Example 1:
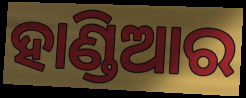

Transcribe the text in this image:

ହାଣ୍ଡିଆର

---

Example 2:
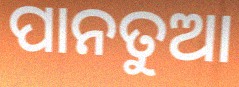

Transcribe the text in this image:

ପାନତୁଆ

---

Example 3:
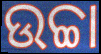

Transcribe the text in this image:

ଉଚ୍ଚା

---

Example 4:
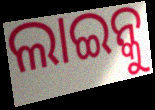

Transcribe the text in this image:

ଲାଇନ୍କୁ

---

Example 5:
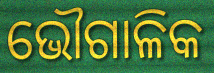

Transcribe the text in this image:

ଭୌଗାଳିକ